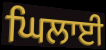
ਘਿਲਾਈ